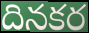
దినకర